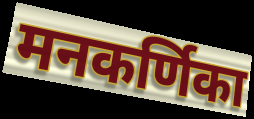
मनकर्णिका